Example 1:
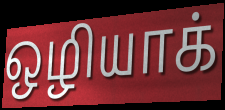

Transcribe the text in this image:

ஒழியாக்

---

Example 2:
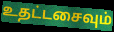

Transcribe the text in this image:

உதட்டசைவும்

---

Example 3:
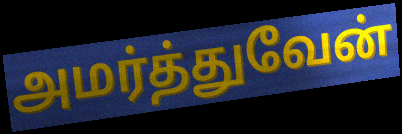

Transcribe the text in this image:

அமர்த்துவேன்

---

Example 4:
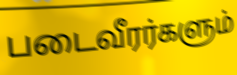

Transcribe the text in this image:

படைவீரர்களும்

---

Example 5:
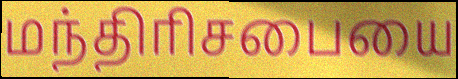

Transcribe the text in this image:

மந்திரிசபையை